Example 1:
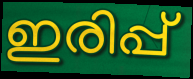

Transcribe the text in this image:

ഇരിപ്പ്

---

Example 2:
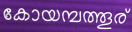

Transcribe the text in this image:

കോയമ്പത്തൂര്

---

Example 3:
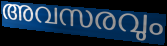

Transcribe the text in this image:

അവസരവും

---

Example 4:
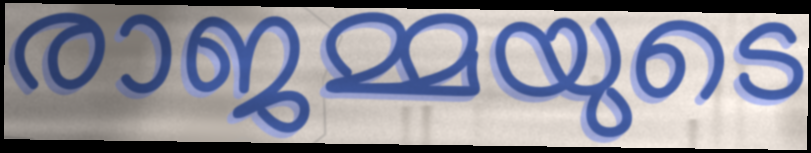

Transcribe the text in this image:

രാജമ്മയുടെ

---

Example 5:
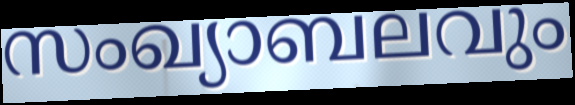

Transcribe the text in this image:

സംഖ്യാബലവും